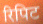
रिपिट